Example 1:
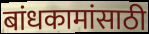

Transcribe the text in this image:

बांधकामांसाठी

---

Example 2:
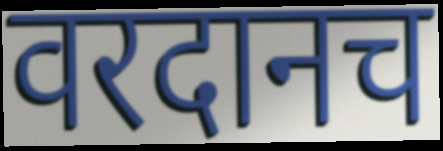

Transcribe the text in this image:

वरदानच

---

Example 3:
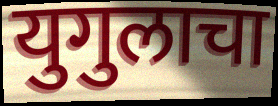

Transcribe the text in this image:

युगुलाचा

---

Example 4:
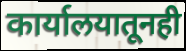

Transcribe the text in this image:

कार्यालयातूनही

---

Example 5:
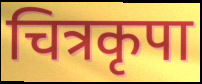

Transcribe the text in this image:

चित्रकृपा